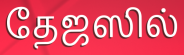
தேஜஸில்